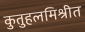
कुतुहलमिश्रीत